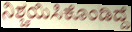
ನಿಶ್ಚಯಿಸಿಕೊಂಡಿದ್ದೆ